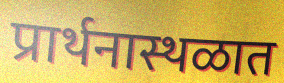
प्रार्थनास्थळात